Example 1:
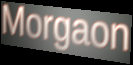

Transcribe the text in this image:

Morgaon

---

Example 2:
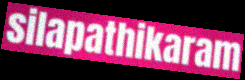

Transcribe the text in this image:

silapathikaram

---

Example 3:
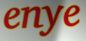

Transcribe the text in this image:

enye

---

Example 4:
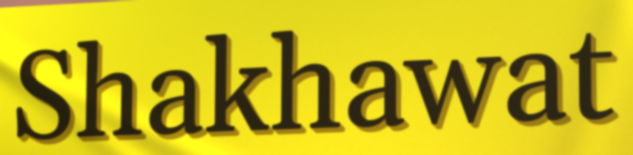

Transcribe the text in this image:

Shakhawat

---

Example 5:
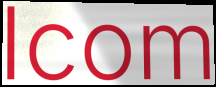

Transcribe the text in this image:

Icom